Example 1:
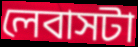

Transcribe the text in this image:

লেবাসটা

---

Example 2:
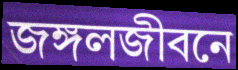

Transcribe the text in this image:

জঙ্গলজীবনে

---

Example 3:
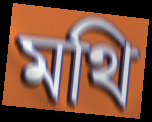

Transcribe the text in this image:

মথি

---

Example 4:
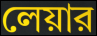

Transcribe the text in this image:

লেয়ার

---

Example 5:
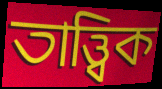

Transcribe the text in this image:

তাত্ত্বিক